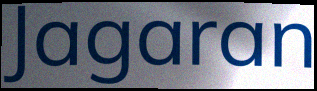
Jagaran